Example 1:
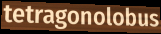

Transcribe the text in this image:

tetragonolobus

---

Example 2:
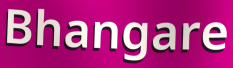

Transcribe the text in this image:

Bhangare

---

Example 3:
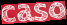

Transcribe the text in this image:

caso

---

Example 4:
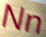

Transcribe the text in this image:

Nn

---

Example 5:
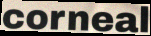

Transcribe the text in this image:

corneal